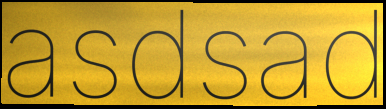
asdsad